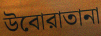
উবোরাতানা